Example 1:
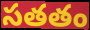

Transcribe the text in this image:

సతతం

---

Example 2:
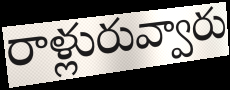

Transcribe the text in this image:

రాళ్లురువ్వారు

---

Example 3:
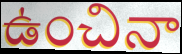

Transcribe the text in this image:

ఉంచినా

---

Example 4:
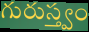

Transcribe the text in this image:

గురుస్త్వం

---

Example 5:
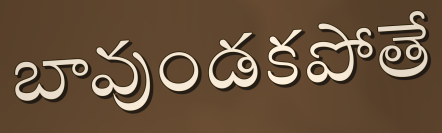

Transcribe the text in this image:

బావుండకపోతే